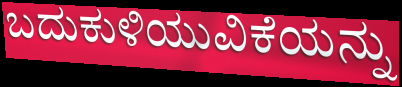
ಬದುಕುಳಿಯುವಿಕೆಯನ್ನು